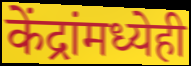
केंद्रांमध्येही